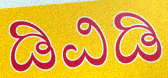
ಡಿವಿಡಿ